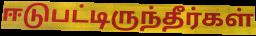
ஈடுபட்டிருந்தீர்கள்